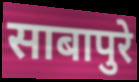
साबापुरे